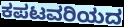
ಕಪಟವರಿಯದ